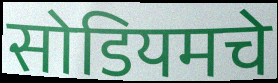
सोडियमचे